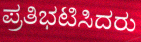
ಪ್ರತಿಭಟಿಸಿದರು